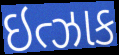
ઇત્ઝાક